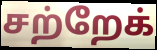
சற்றேக்